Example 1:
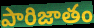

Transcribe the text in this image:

పారిజాతం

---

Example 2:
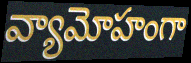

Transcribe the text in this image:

వ్యామోహంగా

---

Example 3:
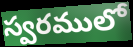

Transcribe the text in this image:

స్వరములో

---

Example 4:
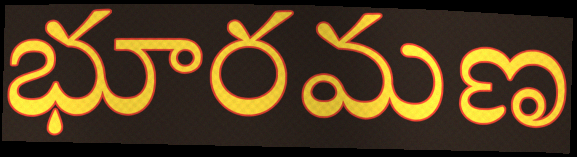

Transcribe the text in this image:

భూరమణ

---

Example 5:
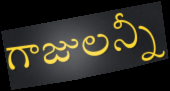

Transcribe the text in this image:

గాజులన్నీ